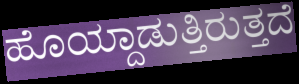
ಹೊಯ್ದಾಡುತ್ತಿರುತ್ತದೆ